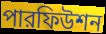
পারফিউশন